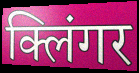
क्लिंगर